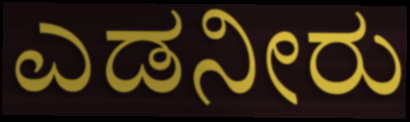
ಎಡನೀರು